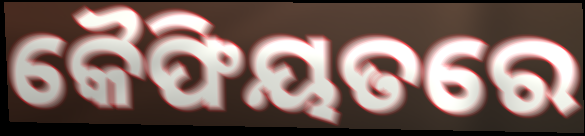
କୈଫିୟତରେ